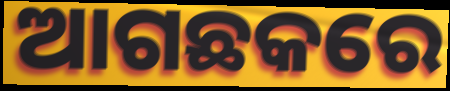
ଆଗଛକରେ